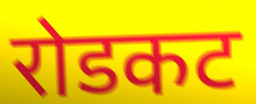
रोडकट